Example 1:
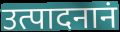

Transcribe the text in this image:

उत्पादनानं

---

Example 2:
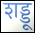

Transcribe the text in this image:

शड्डू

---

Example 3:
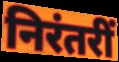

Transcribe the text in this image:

निरंतरीं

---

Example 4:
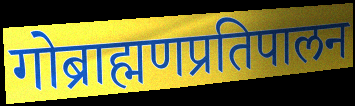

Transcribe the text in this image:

गोब्राह्मणप्रतिपालन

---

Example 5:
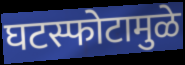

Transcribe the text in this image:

घटस्फोटामुळे